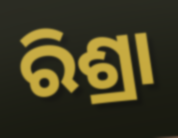
ରିଶ୍ରା